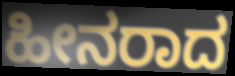
ಹೀನರಾದ